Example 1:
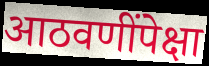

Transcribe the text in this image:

आठवणींपेक्षा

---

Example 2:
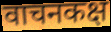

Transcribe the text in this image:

वाचनकक्ष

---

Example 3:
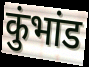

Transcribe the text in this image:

कुंभांड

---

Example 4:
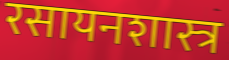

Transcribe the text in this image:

रसायनशास्त्र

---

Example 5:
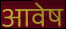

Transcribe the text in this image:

आवेष